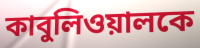
কাবুলিওয়ালকে